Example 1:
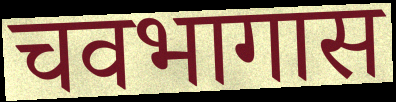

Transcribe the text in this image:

चवभागास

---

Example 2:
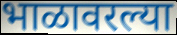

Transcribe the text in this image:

भाळावरल्या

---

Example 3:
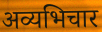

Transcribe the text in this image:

अव्यभिचार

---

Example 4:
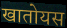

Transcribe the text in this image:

खातोयस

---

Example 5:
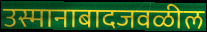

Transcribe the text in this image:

उस्मानाबादजवळील